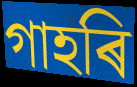
গাহৰি